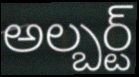
అల్బర్ట్